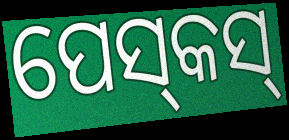
ପେସ୍‌କସ୍